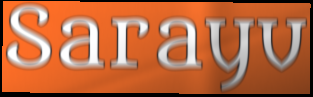
Sarayu